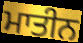
ਮਾਤੀਨ